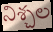
నిశ్చల